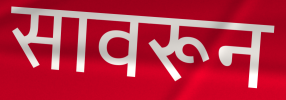
सावरून